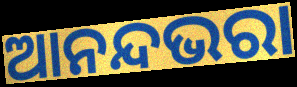
ଆନନ୍ଦଭରା